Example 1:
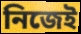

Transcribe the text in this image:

নিজেই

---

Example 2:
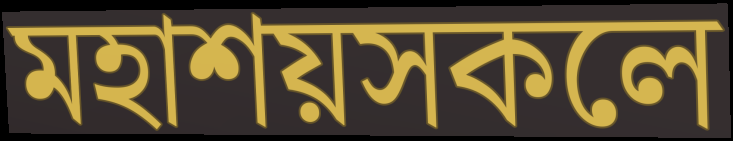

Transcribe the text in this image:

মহাশয়সকলে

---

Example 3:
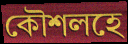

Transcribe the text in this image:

কৌশলহে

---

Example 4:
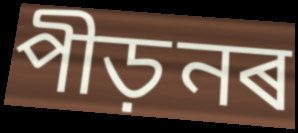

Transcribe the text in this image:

পীড়নৰ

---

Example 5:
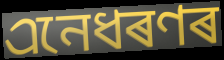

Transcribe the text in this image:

এনেধৰণৰ